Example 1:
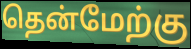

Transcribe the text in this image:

தென்மேற்கு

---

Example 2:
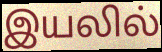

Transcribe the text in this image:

இயலில்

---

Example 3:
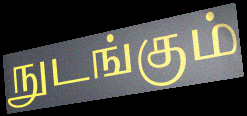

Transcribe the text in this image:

நுடங்கும்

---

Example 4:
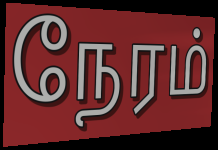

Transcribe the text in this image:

நேரம்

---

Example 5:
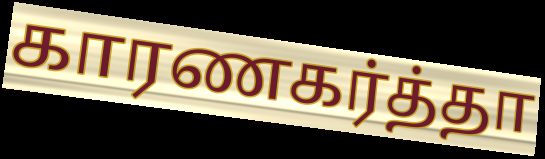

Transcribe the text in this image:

காரணகர்த்தா